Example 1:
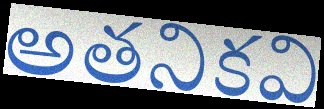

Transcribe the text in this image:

అతనికవి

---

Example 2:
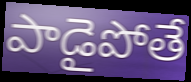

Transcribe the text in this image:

పాడైపోతే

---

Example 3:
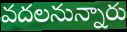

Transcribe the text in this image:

వదలనున్నారు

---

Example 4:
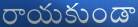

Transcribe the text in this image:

రాయకుండా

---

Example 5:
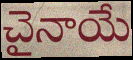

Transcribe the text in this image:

చైనాయే